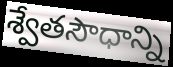
శ్వేతసౌధాన్ని